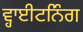
ਵ੍ਹਾਈਟਨਿੰਗ